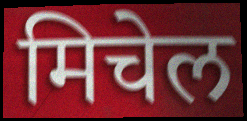
मिचेल